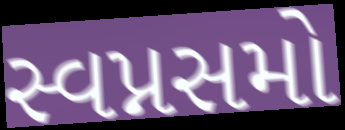
સ્વપ્નસમો